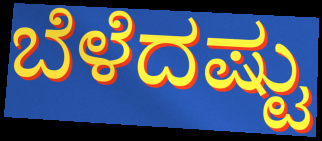
ಬೆಳೆದಷ್ಟು